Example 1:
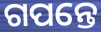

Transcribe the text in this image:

ଗପନ୍ତେ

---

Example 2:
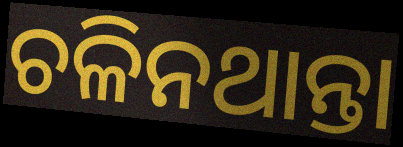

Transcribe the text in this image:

ଚଳିନଥାନ୍ତା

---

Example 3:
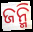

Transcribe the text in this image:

ଜନ୍ମି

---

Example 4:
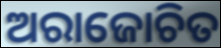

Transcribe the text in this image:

ଅରାଜୋଚିତ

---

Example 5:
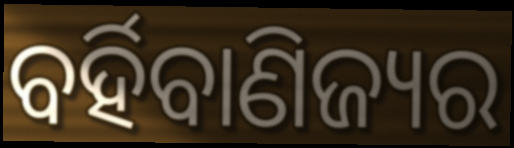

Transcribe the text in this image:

ବର୍ହିବାଣିଜ୍ୟର